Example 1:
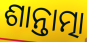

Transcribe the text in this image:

ଶାନ୍ତାତ୍ମା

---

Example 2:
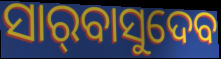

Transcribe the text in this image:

ସାର୍‌ବାସୁଦେବ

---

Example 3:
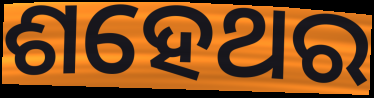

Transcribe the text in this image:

ଶହେଥର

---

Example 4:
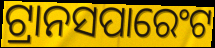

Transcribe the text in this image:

ଟ୍ରାନସପାରେଂଟ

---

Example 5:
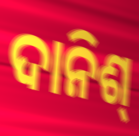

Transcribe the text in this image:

ଦାନିଶ୍